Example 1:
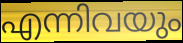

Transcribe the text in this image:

എന്നിവയും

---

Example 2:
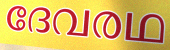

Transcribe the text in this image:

ദേവരഥ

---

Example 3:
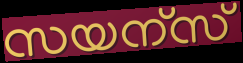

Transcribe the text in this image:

സയന്സ്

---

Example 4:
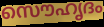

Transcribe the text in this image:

സൌഹൃദം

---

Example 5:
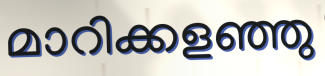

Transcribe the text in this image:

മാറിക്കളഞ്ഞു